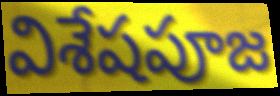
విశేషపూజ